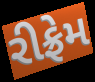
રીફ્રેમ